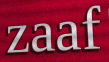
zaaf